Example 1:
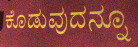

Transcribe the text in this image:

ಕೊಡುವುದನ್ನೂ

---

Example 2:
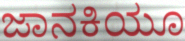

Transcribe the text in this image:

ಜಾನಕಿಯೂ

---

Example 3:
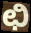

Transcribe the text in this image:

ಛಿ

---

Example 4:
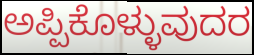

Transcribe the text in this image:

ಅಪ್ಪಿಕೊಳ್ಳುವುದರ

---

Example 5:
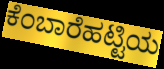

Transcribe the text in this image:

ಕೆಂಬಾರೆಹಟ್ಟಿಯ